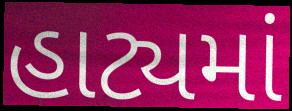
હાટ્યમાં